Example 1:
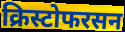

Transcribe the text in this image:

क्रिस्टोफरसन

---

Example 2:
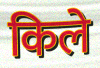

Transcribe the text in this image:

किले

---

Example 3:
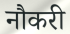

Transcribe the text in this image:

नौकरी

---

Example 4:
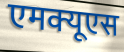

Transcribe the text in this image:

एमक्यूएस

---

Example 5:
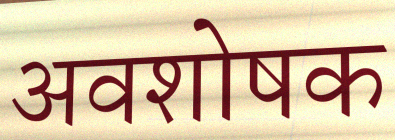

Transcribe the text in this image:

अवशोषक